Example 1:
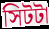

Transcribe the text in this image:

সিটটা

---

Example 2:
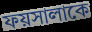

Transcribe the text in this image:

ফয়সালাকে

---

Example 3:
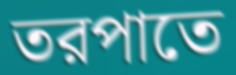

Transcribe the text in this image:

তরপাতে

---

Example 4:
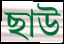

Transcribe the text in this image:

ছাউ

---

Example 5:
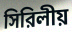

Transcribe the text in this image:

সিরিলীয়